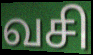
வசி